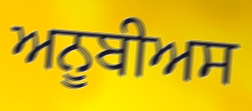
ਅਨੂਬੀਅਸ